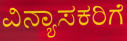
ವಿನ್ಯಾಸಕರಿಗೆ